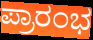
ಪ್ರಾರಂಭ